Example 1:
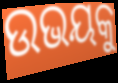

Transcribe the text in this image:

ଉଭୟକୁ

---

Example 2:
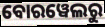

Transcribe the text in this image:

ବୋରୱେଲରୁ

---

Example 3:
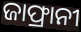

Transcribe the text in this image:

ଜାଫ୍ରାନୀ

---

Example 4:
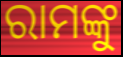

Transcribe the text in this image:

ରାମଙ୍କୁ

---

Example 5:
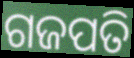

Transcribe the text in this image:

ଗଜପତି